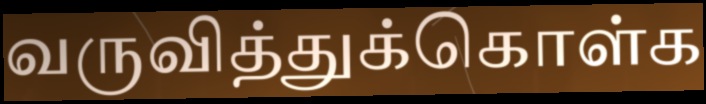
வருவித்துக்கொள்க